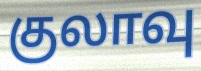
குலாவு